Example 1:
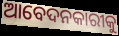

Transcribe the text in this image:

ଆବେଦନକାରୀକୁ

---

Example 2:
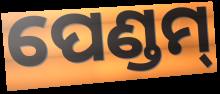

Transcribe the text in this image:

ପେଣ୍ଡମ୍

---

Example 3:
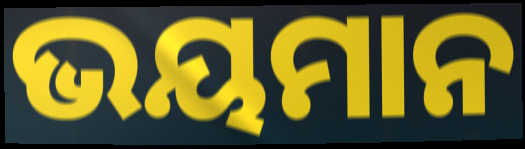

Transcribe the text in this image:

ଭୟମାନ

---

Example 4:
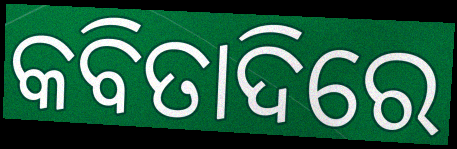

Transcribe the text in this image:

କବିତାଦିରେ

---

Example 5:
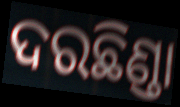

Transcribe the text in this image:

ଦରଛିଣ୍ଡା